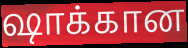
ஷாக்கான